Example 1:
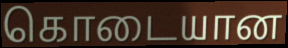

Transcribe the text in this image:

கொடையான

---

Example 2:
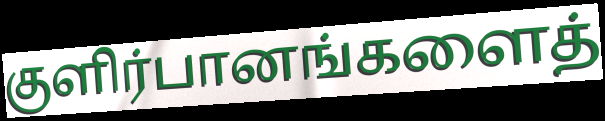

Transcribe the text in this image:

குளிர்பானங்களைத்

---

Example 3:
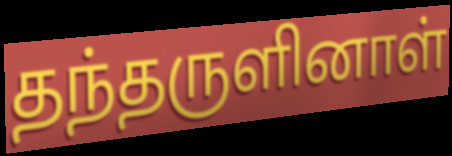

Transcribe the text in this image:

தந்தருளினாள்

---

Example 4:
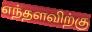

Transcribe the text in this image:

எந்தளவிற்கு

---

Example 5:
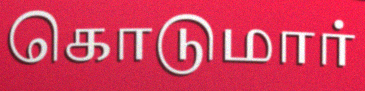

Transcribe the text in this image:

கொடுமார்